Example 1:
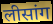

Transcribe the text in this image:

लीसांग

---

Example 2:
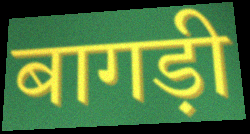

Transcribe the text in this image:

बागड़ी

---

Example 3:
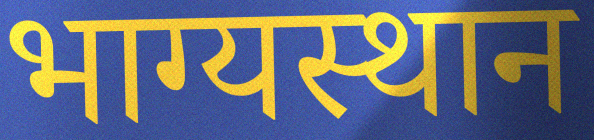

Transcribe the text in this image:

भाग्यस्थान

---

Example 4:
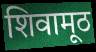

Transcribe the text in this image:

शिवामूठ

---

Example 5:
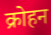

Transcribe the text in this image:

क्रोहन